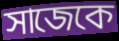
সাজেকে